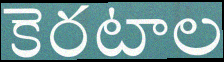
కెరటాల